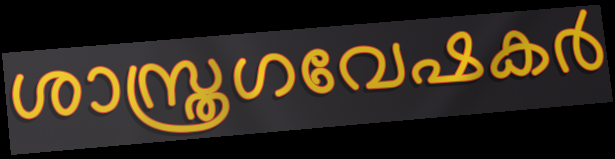
ശാസ്ത്രഗവേഷകർ